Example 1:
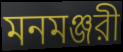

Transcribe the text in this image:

মনমঞ্জরী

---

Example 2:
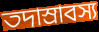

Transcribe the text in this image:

তদাস্রাবস্য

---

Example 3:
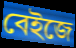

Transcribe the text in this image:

বেইজে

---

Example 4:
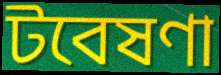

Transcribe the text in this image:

টবেষণা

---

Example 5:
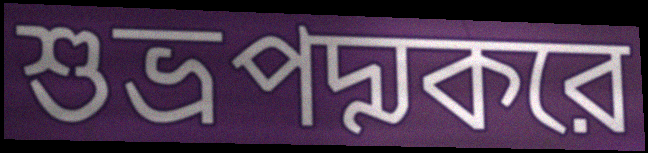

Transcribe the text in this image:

শুভ্রপদ্মকরে